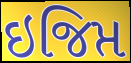
ઇજિપ્ત